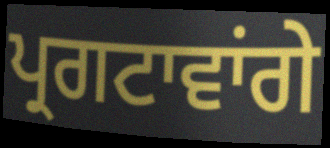
ਪ੍ਰਗਟਾਵਾਂਗੇ